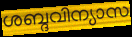
ശബ്ദവിന്യാസ